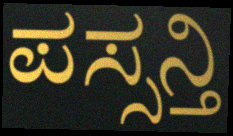
ಪಸ್ಸನ್ತಿ